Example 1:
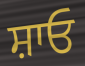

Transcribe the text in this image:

ਸ਼ਾਓ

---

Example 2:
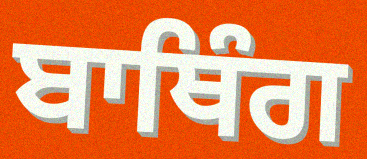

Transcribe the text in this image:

ਬਾਥਿੰਗ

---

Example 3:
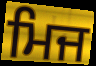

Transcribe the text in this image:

ਮਿਜ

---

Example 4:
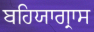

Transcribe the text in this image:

ਬਹਿਯਾਗ੍ਰਾਸ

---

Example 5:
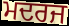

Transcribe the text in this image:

ਮਦਰਜ